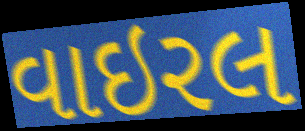
વાઇરલ